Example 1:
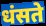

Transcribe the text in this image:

धंसते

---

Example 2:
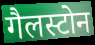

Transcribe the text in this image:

गैलस्टोन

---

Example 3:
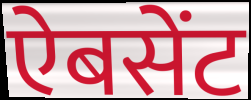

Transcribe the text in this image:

ऐबसेंट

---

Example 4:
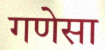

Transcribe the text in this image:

गणेसा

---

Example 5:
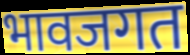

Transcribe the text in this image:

भावजगत